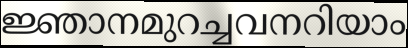
ജ്ഞാനമുറച്ചവനറിയാം